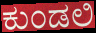
ಕುಂಡಲಿ